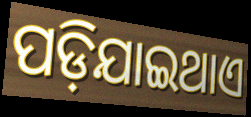
ପଡ଼ିଯାଇଥାଏ